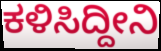
ಕಳಿಸಿದ್ದೀನಿ